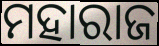
ମହାରାଜ